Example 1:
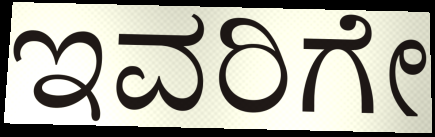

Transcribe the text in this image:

ಇವರಿಗೇ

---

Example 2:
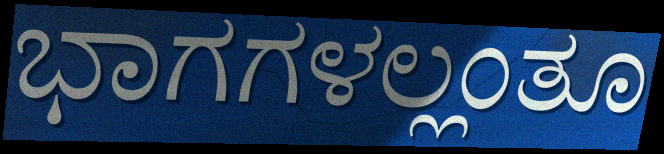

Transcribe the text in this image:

ಭಾಗಗಳಲ್ಲಂತೂ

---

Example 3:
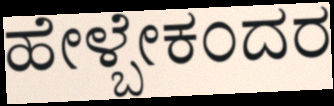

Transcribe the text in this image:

ಹೇಳ್ಬೇಕಂದರ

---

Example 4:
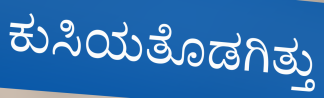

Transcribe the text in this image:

ಕುಸಿಯತೊಡಗಿತ್ತು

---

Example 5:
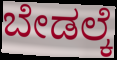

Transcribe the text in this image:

ಬೇಡಲ್ಕೆ